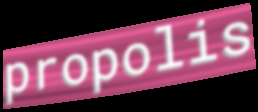
propolis